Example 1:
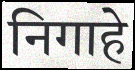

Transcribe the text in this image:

निगाहे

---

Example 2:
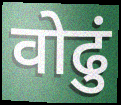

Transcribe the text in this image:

वोढुं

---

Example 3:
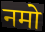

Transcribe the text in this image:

नमो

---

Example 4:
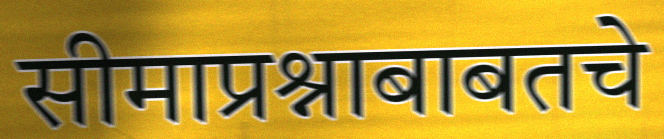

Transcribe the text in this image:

सीमाप्रश्नाबाबतचे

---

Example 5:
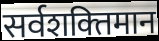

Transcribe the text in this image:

सर्वशक्‍तिमान